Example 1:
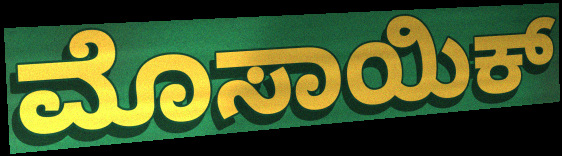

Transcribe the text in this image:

ಮೊಸಾಯಿಕ್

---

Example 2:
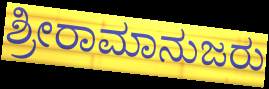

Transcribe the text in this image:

ಶ್ರೀರಾಮಾನುಜರು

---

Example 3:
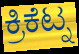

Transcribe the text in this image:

ಕ್ರಿಕೆಟ್ನ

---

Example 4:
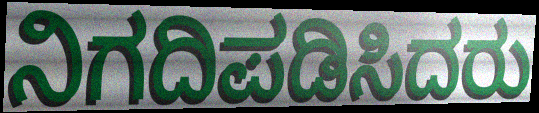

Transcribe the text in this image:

ನಿಗದಿಪಡಿಸಿದರು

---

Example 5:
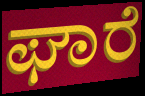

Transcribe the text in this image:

ಘಾರೆ